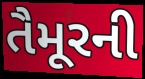
તૈમૂરની